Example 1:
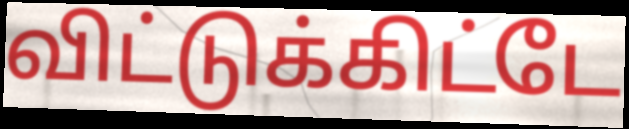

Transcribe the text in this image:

விட்டுக்கிட்டே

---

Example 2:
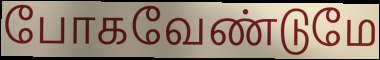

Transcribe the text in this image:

போகவேண்டுமே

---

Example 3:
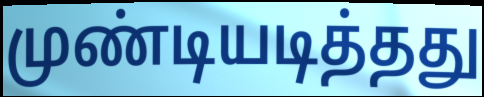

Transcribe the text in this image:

முண்டியடித்தது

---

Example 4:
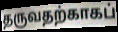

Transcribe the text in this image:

தருவதற்காகப்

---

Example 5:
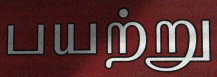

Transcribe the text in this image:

பயற்று